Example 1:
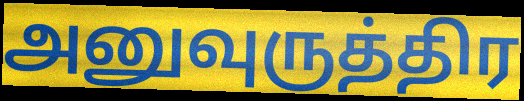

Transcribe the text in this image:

அனுவுருத்திர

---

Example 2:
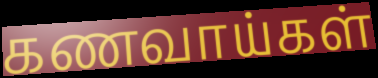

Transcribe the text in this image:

கணவாய்கள்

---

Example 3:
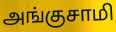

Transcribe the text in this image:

அங்குசாமி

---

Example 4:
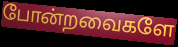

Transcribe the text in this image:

போன்றவைகளே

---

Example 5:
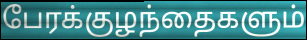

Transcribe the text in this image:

பேரக்குழந்தைகளும்